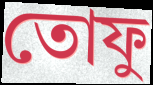
তোফু